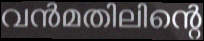
വൻമതിലിന്റെ